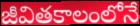
జీవితకాలంలోనే